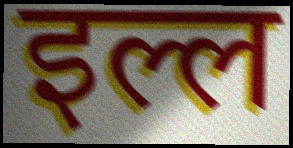
इल्ल